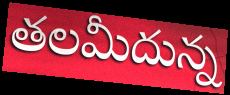
తలమీదున్న